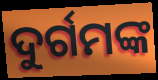
ଦୁର୍ଗମଙ୍କ